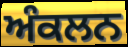
ਅੰਕਲਨ